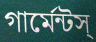
গার্মেন্টস্